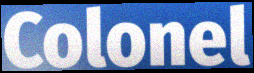
Colonel